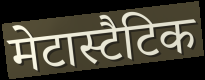
मेटास्टैटिक